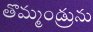
తొమ్మండ్రును